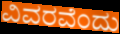
ವಿವರವೆಂದು